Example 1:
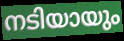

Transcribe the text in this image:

നടിയായും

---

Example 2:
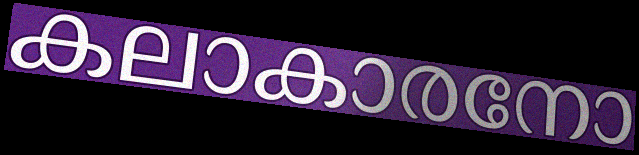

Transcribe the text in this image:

കലാകാരനോ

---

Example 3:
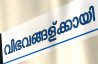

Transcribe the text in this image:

വിഭവങ്ങള്ക്കായി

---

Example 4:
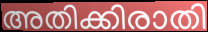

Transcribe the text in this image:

അതിക്കിരാതി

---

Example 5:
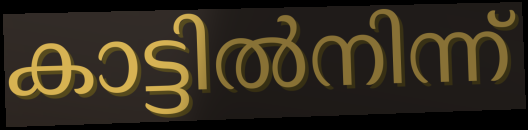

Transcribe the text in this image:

കാട്ടിൽനിന്ന്